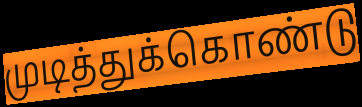
முடித்துக்கொண்டு